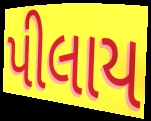
પીલાય